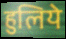
हुलिये